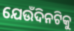
ଯେଉଁଦିନଟିକୁ